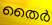
തൈർ